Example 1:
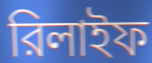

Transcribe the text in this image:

রিলাইফ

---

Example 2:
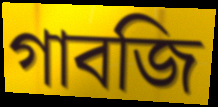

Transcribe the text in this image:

গাবজি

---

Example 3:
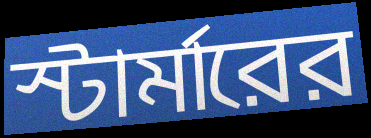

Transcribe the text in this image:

স্টার্মারের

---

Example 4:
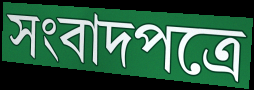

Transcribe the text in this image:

সংবাদপত্রে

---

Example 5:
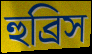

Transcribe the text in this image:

হুব্রিস